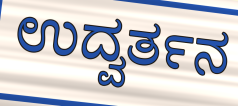
ಉದ್ವರ್ತನ